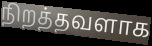
நிறத்தவளாக